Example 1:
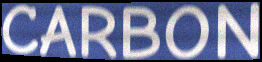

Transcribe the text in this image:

CARBON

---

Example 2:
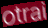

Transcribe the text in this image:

otrai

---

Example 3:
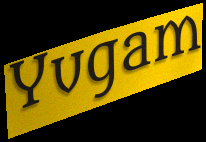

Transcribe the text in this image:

Yugam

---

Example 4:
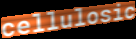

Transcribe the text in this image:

cellulosic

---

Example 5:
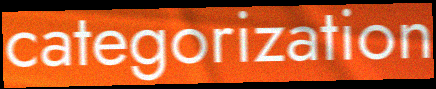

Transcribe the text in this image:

categorization